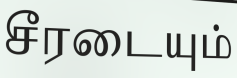
சீரடையும்